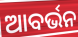
ଆବର୍ଭନ